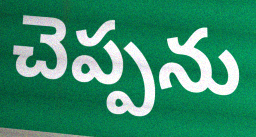
చెప్పను